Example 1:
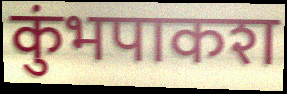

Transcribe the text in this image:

कुंभपाकश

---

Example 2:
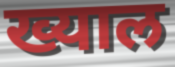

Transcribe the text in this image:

ख्याल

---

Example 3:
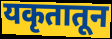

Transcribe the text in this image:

यकृतातून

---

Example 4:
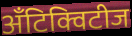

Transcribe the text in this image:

अँटिक्विटीज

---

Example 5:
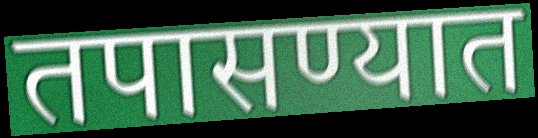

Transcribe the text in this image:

तपासण्यात